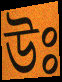
উঃ